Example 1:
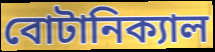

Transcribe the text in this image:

বোটানিক্যাল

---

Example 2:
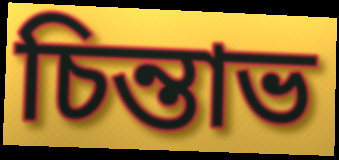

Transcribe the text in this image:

চিন্তাভ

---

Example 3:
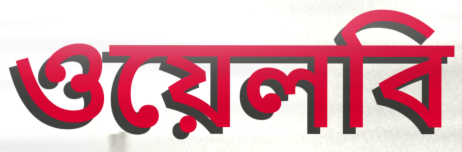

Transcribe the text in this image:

ওয়েলবি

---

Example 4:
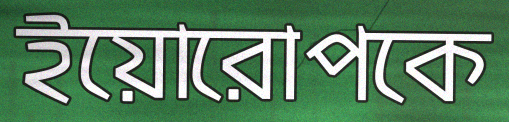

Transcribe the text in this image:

ইয়োরোপকে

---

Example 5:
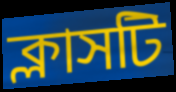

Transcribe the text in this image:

ক্লাসটি